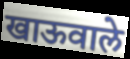
खाऊवाले